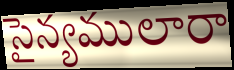
సైన్యములారా